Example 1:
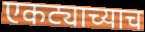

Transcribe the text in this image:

एकट्याच्याच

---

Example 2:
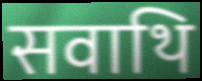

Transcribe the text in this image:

सवाथि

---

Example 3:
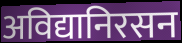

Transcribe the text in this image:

अविद्यानिरसन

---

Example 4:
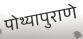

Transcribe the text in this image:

पोथ्यापुराणे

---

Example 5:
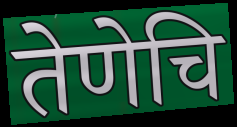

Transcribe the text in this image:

तेणेचि